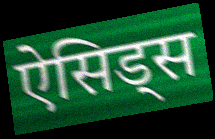
ऐसिड्स